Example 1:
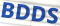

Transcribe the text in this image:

BDDS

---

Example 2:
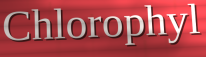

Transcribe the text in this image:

Chlorophyl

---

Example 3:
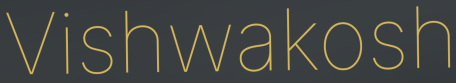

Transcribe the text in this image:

Vishwakosh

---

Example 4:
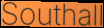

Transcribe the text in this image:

Southall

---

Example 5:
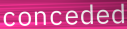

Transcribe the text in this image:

conceded